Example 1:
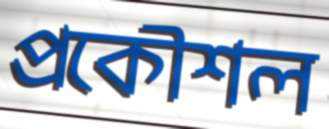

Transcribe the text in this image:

প্ৰকৌশল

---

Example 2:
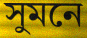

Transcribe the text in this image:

সুমনে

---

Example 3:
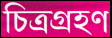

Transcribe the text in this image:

চিত্ৰগ্ৰহণ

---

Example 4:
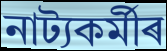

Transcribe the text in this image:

নাট্যকৰ্মীৰ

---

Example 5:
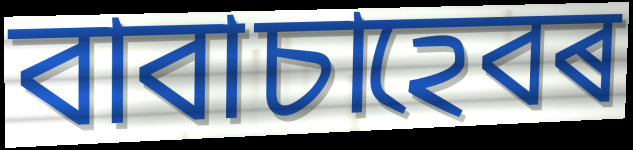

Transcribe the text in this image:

বাবাচাহেবৰ